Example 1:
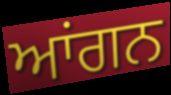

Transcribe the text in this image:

ਆਂਗਨ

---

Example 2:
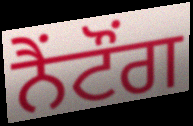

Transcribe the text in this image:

ਨੈਂਟੌਂਗ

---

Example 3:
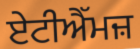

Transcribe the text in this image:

ਏਟੀਐੱਮਜ਼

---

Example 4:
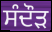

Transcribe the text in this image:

ਸੰਦੌੜ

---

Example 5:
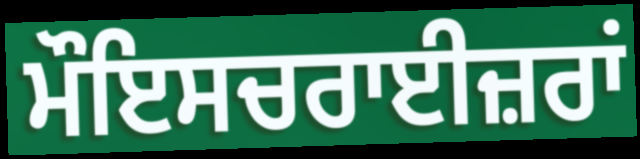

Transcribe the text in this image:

ਮੌਇਸਚਰਾਈਜ਼ਰਾਂ